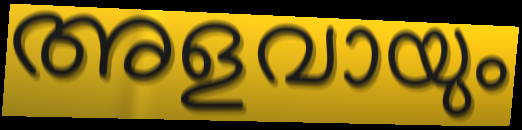
അളവായും